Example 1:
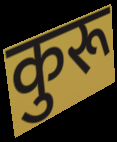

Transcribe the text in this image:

कुरू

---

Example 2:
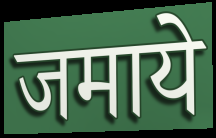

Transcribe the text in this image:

जमाये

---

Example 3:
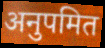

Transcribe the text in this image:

अनुपमित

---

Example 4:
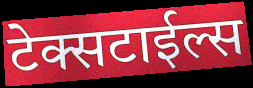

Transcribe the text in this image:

टेक्सटाईल्स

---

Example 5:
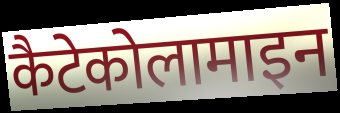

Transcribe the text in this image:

कैटेकोलामाइन